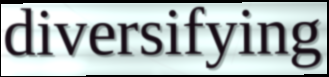
diversifying